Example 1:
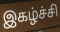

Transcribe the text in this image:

இகழ்ச்சி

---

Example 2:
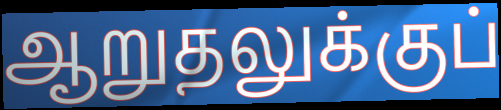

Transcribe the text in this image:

ஆறுதலுக்குப்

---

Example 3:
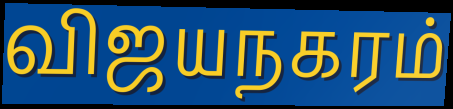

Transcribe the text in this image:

விஜயநகரம்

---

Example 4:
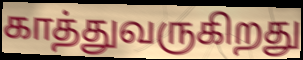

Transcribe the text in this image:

காத்துவருகிறது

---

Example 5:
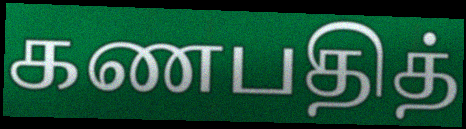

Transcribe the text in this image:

கணபதித்